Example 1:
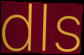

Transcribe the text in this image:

dls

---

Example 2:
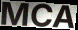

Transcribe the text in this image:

MCA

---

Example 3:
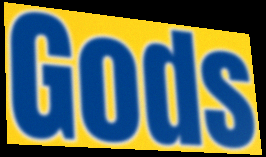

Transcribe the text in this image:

Gods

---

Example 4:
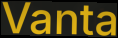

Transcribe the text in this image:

Vanta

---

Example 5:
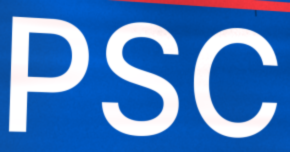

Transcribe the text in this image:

PSC